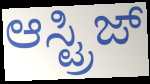
ಆಸ್ಟ್ರಿಜ್